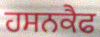
ਹਸਨਕੈਫ